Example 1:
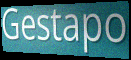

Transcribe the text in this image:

Gestapo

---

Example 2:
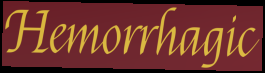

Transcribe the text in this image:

Hemorrhagic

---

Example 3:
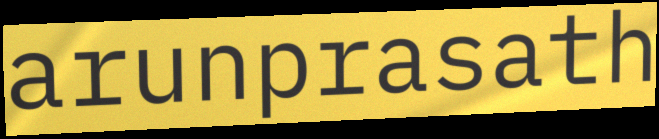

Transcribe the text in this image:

arunprasath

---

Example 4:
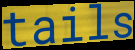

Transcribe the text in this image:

tails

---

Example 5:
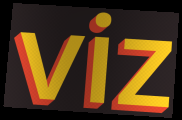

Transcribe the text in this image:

viz